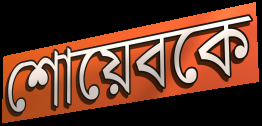
শোয়েবকে